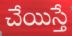
చేయిస్తే